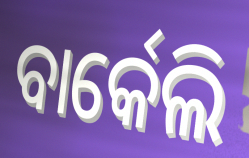
ବାର୍କେଲି